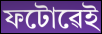
ফটোৱেই